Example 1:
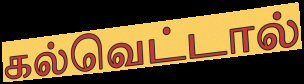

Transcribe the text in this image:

கல்வெட்டால்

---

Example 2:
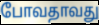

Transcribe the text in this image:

போவதாவது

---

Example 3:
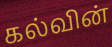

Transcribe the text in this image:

கல்வின்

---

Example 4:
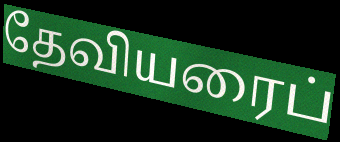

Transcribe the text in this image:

தேவியரைப்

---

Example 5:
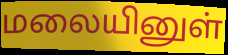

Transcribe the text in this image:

மலையினுள்